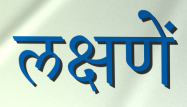
लक्षणें